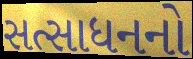
સત્સાધનનો